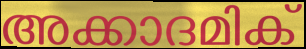
അക്കാദമിക്